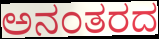
ಅನಂತರದ